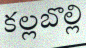
కల్లబొల్లి